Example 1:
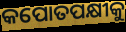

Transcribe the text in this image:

କପୋତପକ୍ଷୀକୁ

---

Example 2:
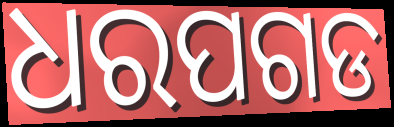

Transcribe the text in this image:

ଧରପଗଡ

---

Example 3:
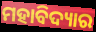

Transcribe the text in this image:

ମହାବିଦ୍ୟାର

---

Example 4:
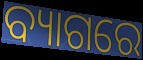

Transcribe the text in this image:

ବ୍ୟାଗରେ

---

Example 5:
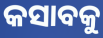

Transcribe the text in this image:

କସାବକୁ